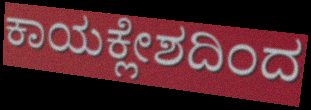
ಕಾಯಕ್ಲೇಶದಿಂದ